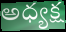
అధ్యక్ష